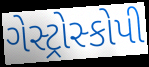
ગેસ્ટ્રોસ્કોપી